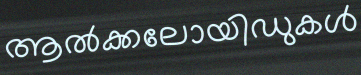
ആൽക്കലോയിഡുകൾ